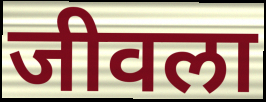
जीवला